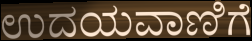
ಉದಯವಾಣಿಗೆ